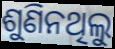
ଶୁଣିନଥିଲୁ